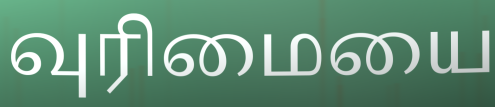
வுரிமையை